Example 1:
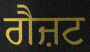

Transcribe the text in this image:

ਗੈਜ਼ਟ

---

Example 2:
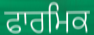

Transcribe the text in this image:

ਫਾਰਮਿਕ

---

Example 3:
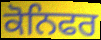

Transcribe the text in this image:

ਕੋਨਿਫਰ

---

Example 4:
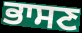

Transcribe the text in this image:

ਭਾਸਣ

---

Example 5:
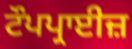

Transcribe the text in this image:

ਟੌਪਪ੍ਰਾਈਜ਼